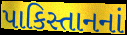
પાકિસ્તાનનાં